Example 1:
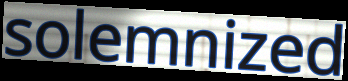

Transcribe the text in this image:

solemnized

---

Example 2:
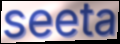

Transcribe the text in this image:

seeta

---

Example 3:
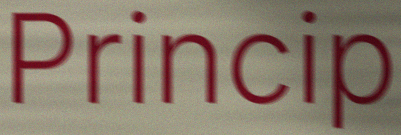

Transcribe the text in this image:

Princip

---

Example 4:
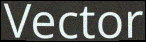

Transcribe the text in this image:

Vector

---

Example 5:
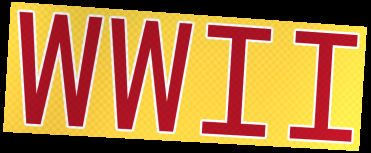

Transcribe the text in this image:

WWII